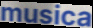
musica